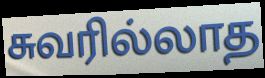
சுவரில்லாத